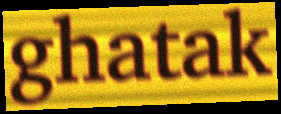
ghatak